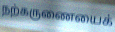
நற்கருணையைக்